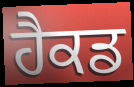
ਹੈਕਡ